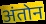
अंतोन